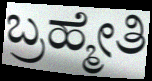
ಬ್ರಹ್ಮೇತಿ